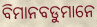
ବିମାନବଡୁମାନେ